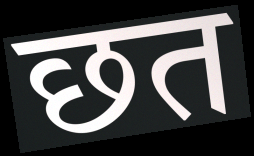
छत